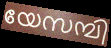
യേസമ്പി